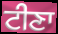
ਟੀਣਾ